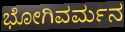
ಭೋಗಿವರ್ಮನ